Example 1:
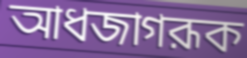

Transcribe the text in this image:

আধজাগরূক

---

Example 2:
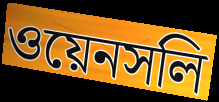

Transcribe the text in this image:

ওয়েনসলি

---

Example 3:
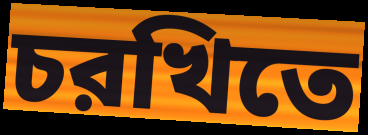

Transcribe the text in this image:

চরখিতে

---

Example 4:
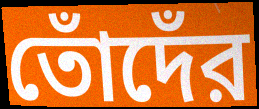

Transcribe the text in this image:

তোঁদেঁর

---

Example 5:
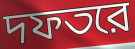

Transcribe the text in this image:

দফতরে